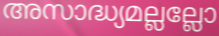
അസാദ്ധ്യമല്ലല്ലോ